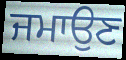
ਜਮਾਉਣ